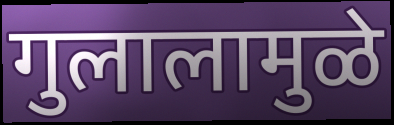
गुलालामुळे